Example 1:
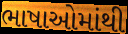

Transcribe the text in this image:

ભાષાઓમાંથી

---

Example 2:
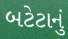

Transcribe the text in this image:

બટેટાનું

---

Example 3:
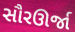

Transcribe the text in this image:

સૌરઊર્જા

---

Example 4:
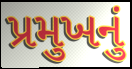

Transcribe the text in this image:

પ્રમુખનું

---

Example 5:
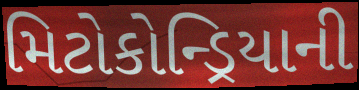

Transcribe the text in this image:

મિટોકોન્ડ્રિયાની